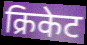
क्रिकेट